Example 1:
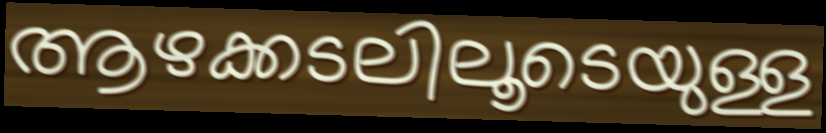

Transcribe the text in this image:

ആഴക്കടലിലൂടെയുള്ള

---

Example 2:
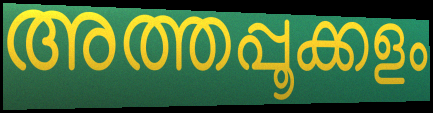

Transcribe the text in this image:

അത്തപ്പൂക്കളം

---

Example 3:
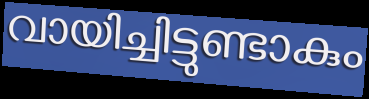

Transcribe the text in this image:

വായിച്ചിട്ടുണ്ടാകും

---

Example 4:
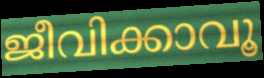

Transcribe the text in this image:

ജീവിക്കാവൂ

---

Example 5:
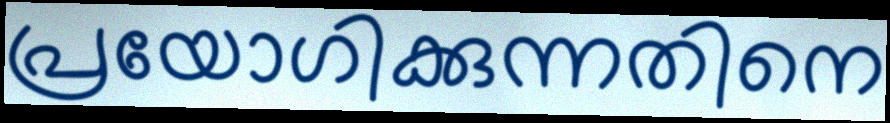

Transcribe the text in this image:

പ്രയോഗിക്കുന്നതിനെ